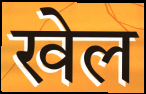
खेल